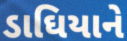
ડાઘિયાને